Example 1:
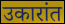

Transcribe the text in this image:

उकारांत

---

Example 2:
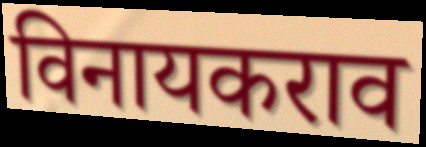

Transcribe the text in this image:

विनायकराव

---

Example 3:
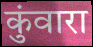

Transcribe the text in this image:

कुंवारा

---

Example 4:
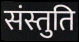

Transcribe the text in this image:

संस्तुति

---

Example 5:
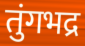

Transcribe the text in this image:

तुंगभद्र